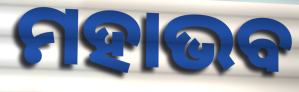
ମହାଭବ